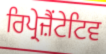
ਰਿਪ੍ਰੇਜ਼ੈਂਟੇਟਿਵ